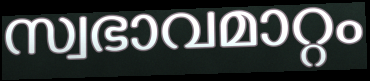
സ്വഭാവമാറ്റം